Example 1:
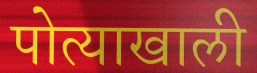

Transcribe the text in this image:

पोत्याखाली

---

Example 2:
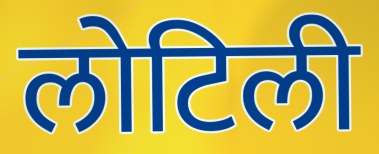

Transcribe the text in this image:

लोटिली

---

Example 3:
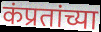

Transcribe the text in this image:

कंप्रतांच्या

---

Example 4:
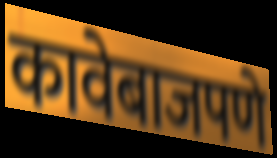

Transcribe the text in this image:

कावेबाजपणे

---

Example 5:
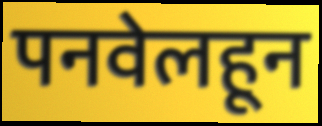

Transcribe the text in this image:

पनवेलहून